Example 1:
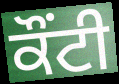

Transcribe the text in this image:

ਕੌਂਟੀ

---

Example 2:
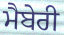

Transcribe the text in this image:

ਮੈਬੇਰੀ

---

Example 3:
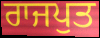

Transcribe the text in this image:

ਰਾਜਪੁਤ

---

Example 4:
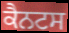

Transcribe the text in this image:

ਕੈਨਟਸ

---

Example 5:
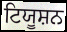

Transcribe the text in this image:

ਟਿਯੂਸ਼ਨ